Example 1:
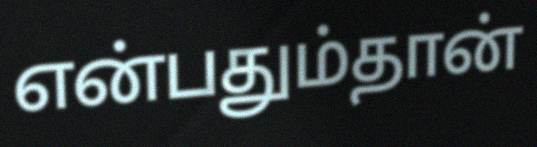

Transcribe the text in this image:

என்பதும்தான்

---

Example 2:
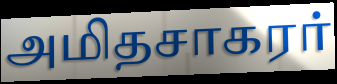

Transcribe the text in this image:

அமிதசாகரர்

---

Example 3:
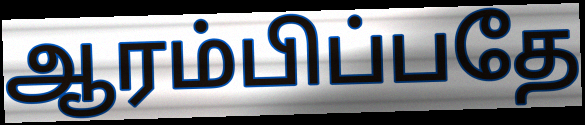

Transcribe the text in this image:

ஆரம்பிப்பதே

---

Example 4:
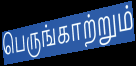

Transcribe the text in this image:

பெருங்காற்றும்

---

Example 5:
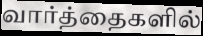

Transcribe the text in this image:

வார்த்தைகளில்